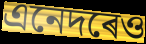
এনেদৰেও